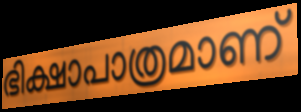
ഭിക്ഷാപാത്രമാണ്